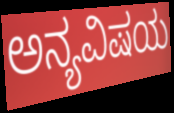
ಅನ್ಯವಿಷಯ